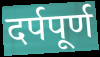
दर्पपूर्ण